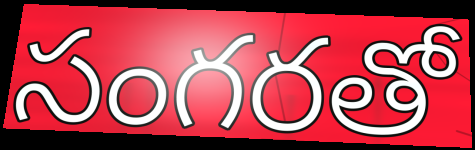
సంగరతో